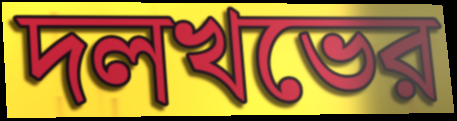
দলখভের